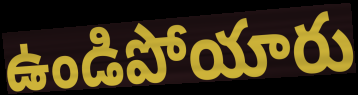
ఉండిపోయారు